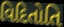
વિદિતોતિ